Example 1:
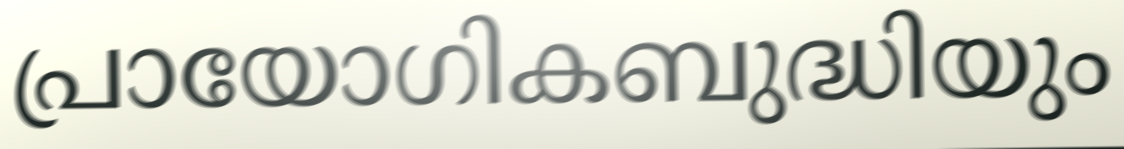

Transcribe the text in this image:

പ്രായോഗികബുദ്ധിയും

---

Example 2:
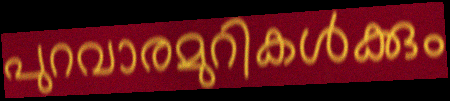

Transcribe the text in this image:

പുറവാരമുറികൾക്കും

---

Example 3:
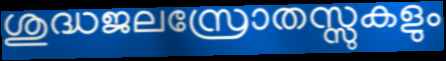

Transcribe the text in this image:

ശുദ്ധജലസ്രോതസ്സുകളും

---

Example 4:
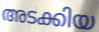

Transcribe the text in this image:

അടക്കിയ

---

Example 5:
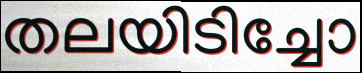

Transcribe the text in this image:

തലയിടിച്ചോ